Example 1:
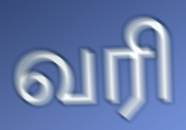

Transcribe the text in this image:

வரி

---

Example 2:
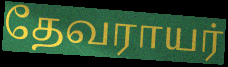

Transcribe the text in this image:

தேவராயர்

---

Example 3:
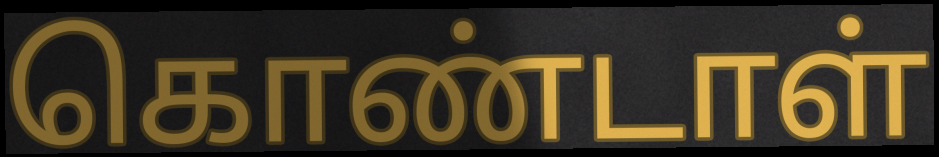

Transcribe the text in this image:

கொண்டாள்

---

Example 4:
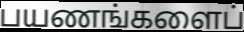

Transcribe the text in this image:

பயணங்களைப்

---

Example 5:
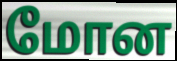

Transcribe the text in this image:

மோன